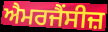
ਐਮਰਜੈਂਸੀਜ਼